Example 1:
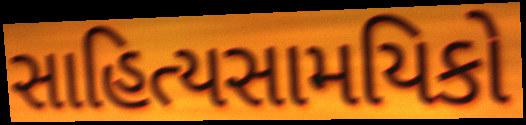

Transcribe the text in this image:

સાહિત્યસામયિકો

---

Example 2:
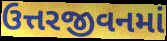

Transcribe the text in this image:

ઉત્તરજીવનમાં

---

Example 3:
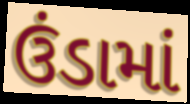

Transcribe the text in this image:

ઉંડામાં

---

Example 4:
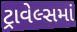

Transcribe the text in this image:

ટ્રાવેલ્સમાં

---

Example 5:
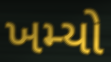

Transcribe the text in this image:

ખમ્યો